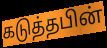
கடுத்தபின்